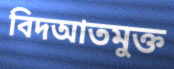
বিদআতমুক্ত